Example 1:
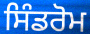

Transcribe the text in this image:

ਸਿੰਡਰੋਮ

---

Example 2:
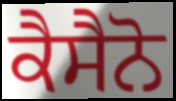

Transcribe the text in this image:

ਕੈਸੈਨੋ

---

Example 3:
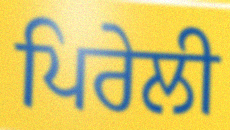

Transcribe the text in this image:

ਪਿਰੇਲੀ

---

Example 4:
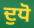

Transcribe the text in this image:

ਦੁਧੋ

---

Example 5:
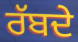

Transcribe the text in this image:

ਰੱਬਦੇ